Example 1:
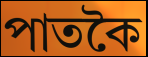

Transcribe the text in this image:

পাতকৈ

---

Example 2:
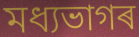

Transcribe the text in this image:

মধ্যভাগৰ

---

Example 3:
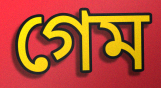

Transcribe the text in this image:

গেম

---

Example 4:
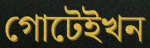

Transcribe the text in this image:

গোটেইখন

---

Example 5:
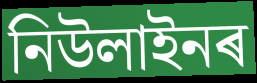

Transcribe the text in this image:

নিউলাইনৰ